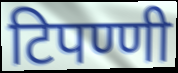
टिपण्णी